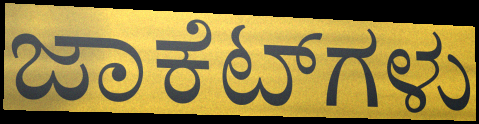
ಜಾಕೆಟ್‌ಗಳು